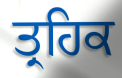
ਤ੍ਰਹਿਕ